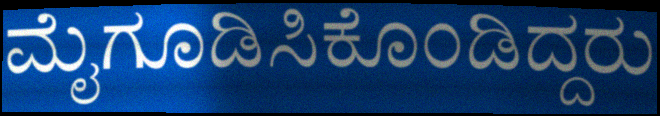
ಮೈಗೂಡಿಸಿಕೊಂಡಿದ್ದರು